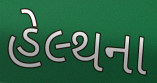
હેલ્થના